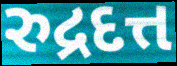
રુદ્રદત્ત